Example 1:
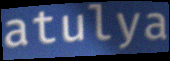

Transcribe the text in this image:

atulya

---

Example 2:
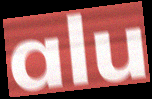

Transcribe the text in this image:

alu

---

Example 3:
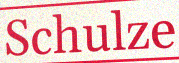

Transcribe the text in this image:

Schulze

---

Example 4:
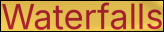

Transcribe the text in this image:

Waterfalls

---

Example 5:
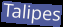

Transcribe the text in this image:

Talipes